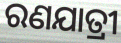
ରଣଯାତ୍ରୀ